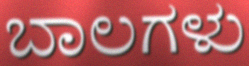
ಬಾಲಗಳು